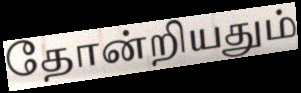
தோன்றியதும்